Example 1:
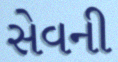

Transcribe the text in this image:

સેવની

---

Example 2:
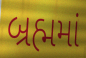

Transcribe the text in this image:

બ્રહ્મમાં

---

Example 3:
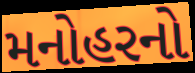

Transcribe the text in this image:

મનોહરનો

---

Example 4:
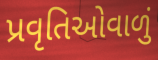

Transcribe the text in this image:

પ્રવૃતિઓવાળું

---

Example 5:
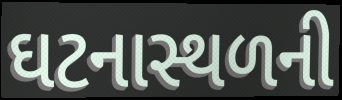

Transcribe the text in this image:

ઘટનાસ્થળની